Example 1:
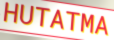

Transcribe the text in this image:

HUTATMA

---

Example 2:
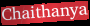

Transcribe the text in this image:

Chaithanya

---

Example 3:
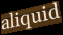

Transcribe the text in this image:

aliquid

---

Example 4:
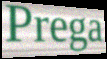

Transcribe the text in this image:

Prega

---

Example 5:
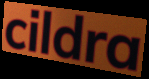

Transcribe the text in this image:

cildra